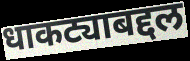
धाकट्याबद्दल